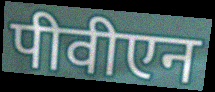
पीवीएन